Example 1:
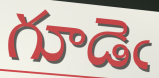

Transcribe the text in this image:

గూడెఁ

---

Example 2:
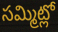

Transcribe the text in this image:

సమ్మిట్లో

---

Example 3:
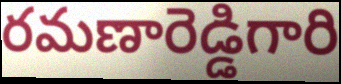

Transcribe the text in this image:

రమణారెడ్డిగారి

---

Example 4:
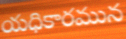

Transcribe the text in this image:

యధికారమున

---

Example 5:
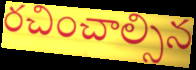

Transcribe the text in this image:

రచించాల్సిన